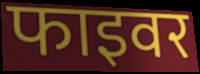
फाइवर